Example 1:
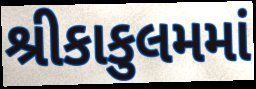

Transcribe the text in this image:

શ્રીકાકુલમમાં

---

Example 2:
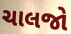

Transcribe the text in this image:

ચાલજો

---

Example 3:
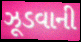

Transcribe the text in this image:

ઝૂડવાની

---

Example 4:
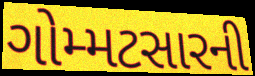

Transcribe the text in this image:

ગોમ્મટસારની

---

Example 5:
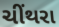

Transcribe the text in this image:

ચીંથરા